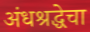
अंधश्रद्धेचा